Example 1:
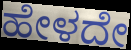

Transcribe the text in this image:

ಹೇಳದೇ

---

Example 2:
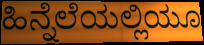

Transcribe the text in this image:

ಹಿನ್ನೆಲೆಯಲ್ಲಿಯೂ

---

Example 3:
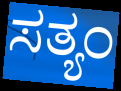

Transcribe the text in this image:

ಸತ್ಯಂ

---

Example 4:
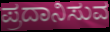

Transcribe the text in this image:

ಪ್ರದಾನಿಸುವ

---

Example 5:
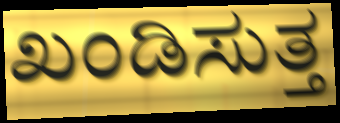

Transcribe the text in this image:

ಖಂಡಿಸುತ್ತ